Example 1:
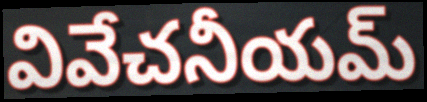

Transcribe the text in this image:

వివేచనీయమ్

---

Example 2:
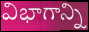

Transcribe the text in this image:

విభాగాన్ని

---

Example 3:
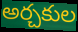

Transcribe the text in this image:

అర్చకుల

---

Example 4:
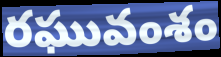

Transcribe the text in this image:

రఘువంశం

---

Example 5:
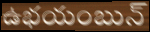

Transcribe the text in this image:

ఉభయంబున్